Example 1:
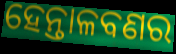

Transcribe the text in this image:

ହେନ୍ତାଳବଣର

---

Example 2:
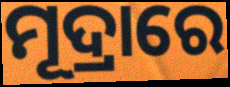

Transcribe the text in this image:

ମୂଦ୍ରାରେ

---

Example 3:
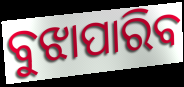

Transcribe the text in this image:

ବୁଝାପାରିବ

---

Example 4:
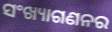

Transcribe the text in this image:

ସଂଖ୍ୟାଗଣନର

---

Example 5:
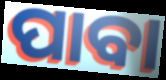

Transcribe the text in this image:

ପାବା